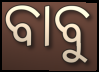
ବାବୁ